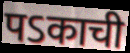
पऽकाची